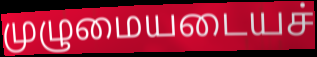
முழுமையடையச்